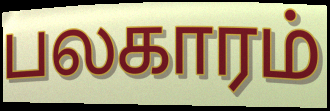
பலகாரம்